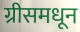
ग्रीसमधून